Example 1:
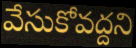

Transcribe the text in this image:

వేసుకోవద్దని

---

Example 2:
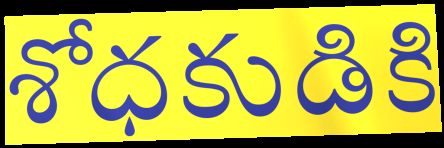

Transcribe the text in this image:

శోధకుడికి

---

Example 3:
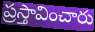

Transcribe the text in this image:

ప్రస్తావించారు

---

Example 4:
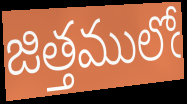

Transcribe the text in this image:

జిత్తములోఁ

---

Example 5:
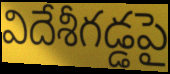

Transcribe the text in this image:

విదేశీగడ్డపై